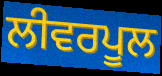
ਲੀਵਰਪੂਲ